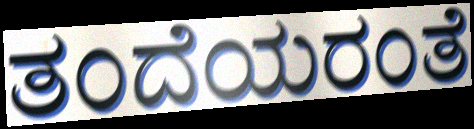
ತಂದೆಯರಂತೆ